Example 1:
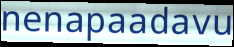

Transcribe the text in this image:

nenapaadavu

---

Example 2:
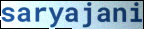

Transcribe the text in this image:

saryajani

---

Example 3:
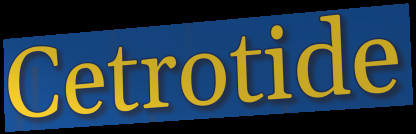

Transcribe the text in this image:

Cetrotide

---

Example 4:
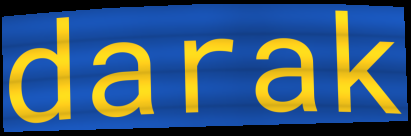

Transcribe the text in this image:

darak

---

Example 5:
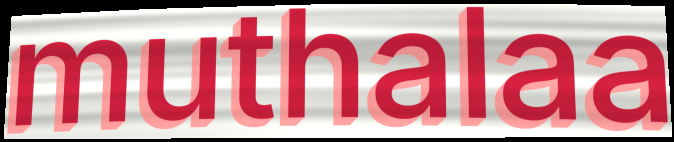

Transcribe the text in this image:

muthalaa